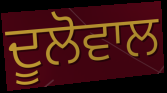
ਦੂਲੋਵਾਲ